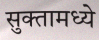
सुक्तामध्ये